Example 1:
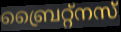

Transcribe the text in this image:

ബ്രൈറ്റ്നസ്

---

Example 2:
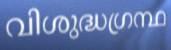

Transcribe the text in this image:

വിശുദ്ധഗ്രന്ഥ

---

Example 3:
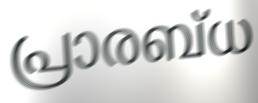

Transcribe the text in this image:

പ്രാരബ്ധ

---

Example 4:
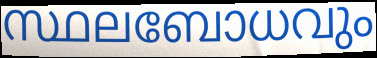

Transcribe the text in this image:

സ്ഥലബോധവും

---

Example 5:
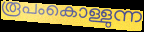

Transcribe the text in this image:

രൂപംകൊള്ളുന്ന